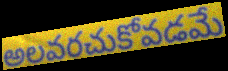
అలవరచుకోవడమే